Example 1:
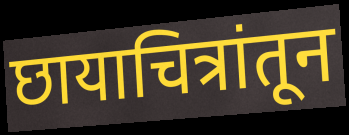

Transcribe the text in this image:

छायाचित्रांतून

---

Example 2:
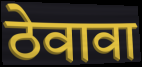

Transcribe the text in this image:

ठेवावा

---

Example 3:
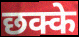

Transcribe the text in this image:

छक्के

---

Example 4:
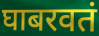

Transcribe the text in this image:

घाबरवतं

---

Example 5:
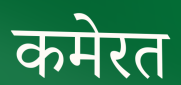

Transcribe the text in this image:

कमेरत